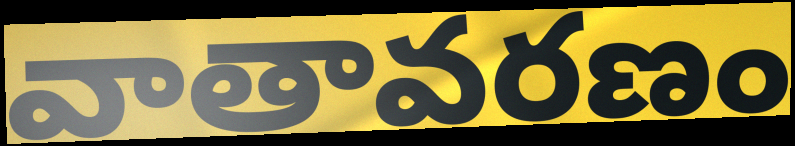
వాతావరణం